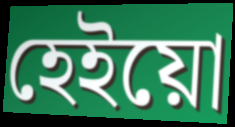
হেইয়ো